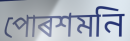
পোৰশমনি